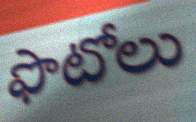
ఫొటోలు